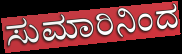
ಸುಮಾರಿನಿಂದ